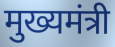
मुख्यमंत्री